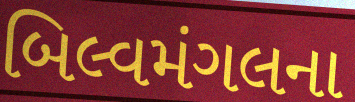
બિલ્વમંગલના